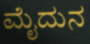
ಮೈದುನ